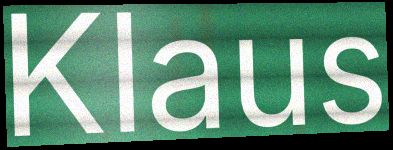
Klaus